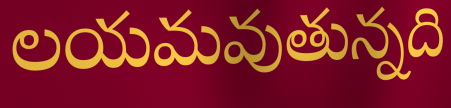
లయమవుతున్నది